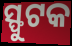
ସ୍ଫୁଟକ